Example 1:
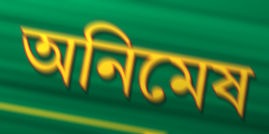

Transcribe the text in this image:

অনিমেষ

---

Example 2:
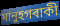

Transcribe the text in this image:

মানুহগৰাকী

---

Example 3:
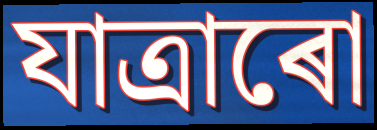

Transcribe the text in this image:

যাত্ৰাৰো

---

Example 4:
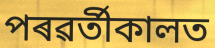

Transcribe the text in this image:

পৰৱৰ্তীকালত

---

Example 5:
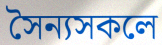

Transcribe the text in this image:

সৈন্যসকলে